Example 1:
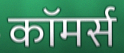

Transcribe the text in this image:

कॉमर्स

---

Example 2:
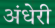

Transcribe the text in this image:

अंधेरी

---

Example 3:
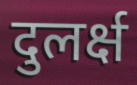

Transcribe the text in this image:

दुलर्क्ष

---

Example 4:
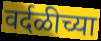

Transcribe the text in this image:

वर्दळीच्या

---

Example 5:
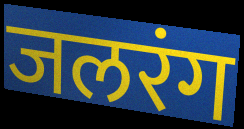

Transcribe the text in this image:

जलरंग